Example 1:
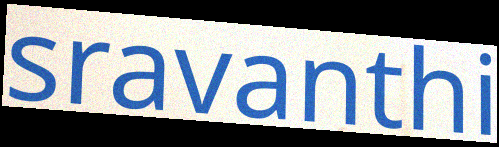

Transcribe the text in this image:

sravanthi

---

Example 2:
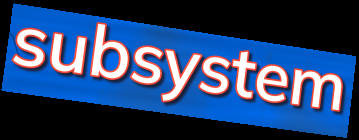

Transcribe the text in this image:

subsystem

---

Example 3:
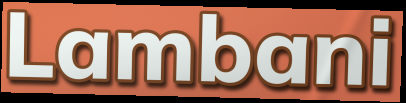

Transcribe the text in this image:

Lambani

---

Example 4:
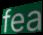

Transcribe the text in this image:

fea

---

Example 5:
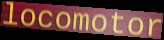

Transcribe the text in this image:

locomotor